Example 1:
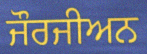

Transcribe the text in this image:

ਜੌਰਜੀਅਨ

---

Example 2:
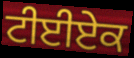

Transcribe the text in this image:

ਟੀਈਏਕ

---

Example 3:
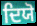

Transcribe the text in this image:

ਦਿਯੋ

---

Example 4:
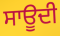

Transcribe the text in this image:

ਸਾਊਦੀ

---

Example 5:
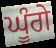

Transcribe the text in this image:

ਘੂੰਗੇ